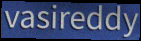
vasireddy